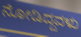
ನೋಡಿದ್ದವಳು